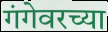
गंगेवरच्या